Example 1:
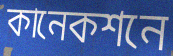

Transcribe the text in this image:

কানেকশনে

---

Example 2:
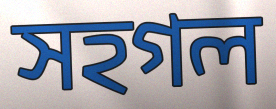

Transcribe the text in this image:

সহগল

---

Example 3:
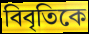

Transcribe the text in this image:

বিবৃতিকে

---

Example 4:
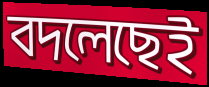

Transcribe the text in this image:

বদলেছেই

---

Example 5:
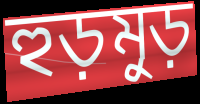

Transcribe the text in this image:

হুড়মুড়